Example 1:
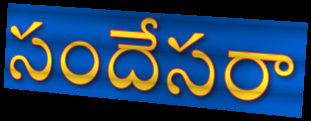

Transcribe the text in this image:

సందేసరా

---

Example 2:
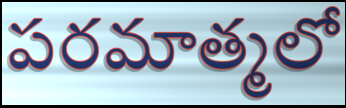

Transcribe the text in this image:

పరమాత్మలో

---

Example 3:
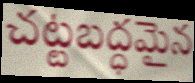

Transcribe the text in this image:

చట్టబద్ధమైన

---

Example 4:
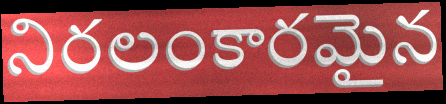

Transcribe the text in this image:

నిరలంకారమైన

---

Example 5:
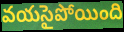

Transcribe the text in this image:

వయసైపోయింది